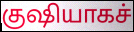
குஷியாகச்